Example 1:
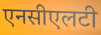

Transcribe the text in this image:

एनसीएलटी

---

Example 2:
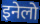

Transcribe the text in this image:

इनेलो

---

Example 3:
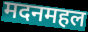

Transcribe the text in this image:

मदनमहल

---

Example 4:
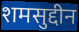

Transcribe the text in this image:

शमसुद्दीन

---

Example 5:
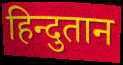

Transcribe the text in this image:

हिन्दुतान